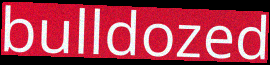
bulldozed